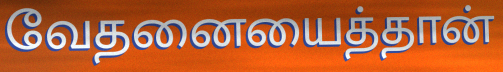
வேதனையைத்தான்